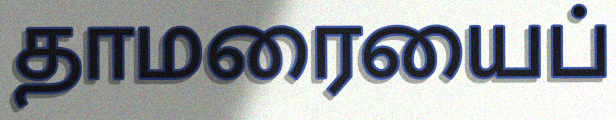
தாமரையைப்